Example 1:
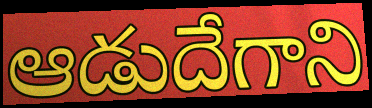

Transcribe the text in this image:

ఆడుదేగాని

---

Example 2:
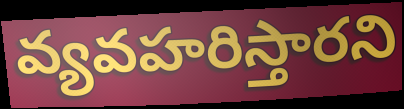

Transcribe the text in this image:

వ్యవహరిస్తారని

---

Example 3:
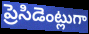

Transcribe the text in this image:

ప్రెసిడెంట్లుగా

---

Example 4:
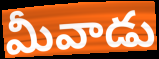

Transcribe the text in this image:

మీవాడు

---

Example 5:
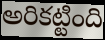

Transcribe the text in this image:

అరికట్టింది